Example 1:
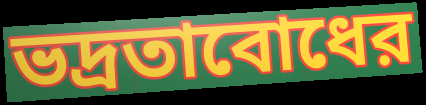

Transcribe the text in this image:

ভদ্রতাবোধের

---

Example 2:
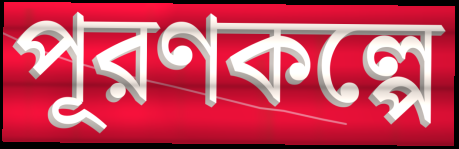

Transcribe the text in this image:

পূরণকল্পে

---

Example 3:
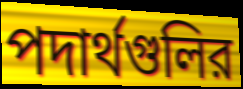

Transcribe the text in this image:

পদার্থগুলির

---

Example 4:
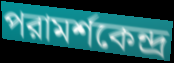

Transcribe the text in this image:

পরামর্শকেন্দ্র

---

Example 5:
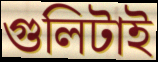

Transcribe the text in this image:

গুলিটাই